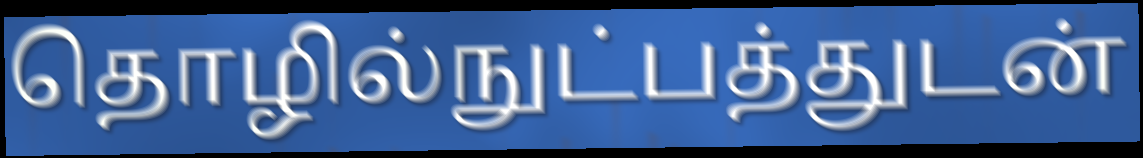
தொழில்நுட்பத்துடன்